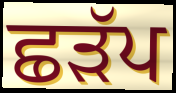
ਛੜੱਪ